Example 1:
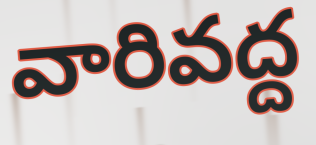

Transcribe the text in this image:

వారివద్ద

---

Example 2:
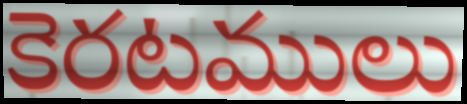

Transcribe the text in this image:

కెరటములు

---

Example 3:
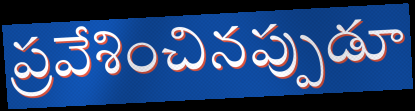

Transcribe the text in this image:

ప్రవేశించినప్పుడూ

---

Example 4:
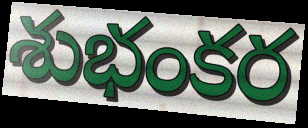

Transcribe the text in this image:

శుభంకర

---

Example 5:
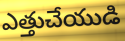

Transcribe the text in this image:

ఎత్తుచేయుడి